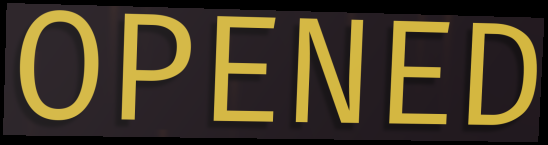
OPENED